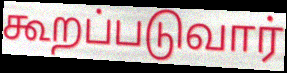
கூறப்படுவார்